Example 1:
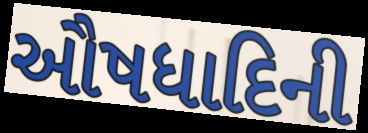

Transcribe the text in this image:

ઔષધાદિની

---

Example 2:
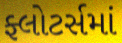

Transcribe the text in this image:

ફ્લોટર્સમાં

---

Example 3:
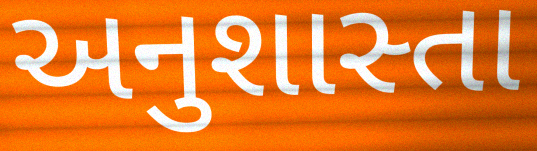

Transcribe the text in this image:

અનુશાસ્તા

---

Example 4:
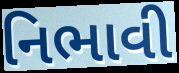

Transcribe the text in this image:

નિભાવી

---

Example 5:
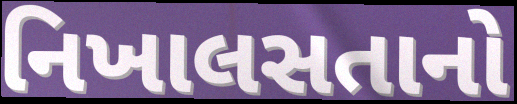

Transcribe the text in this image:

નિખાલસતાનો